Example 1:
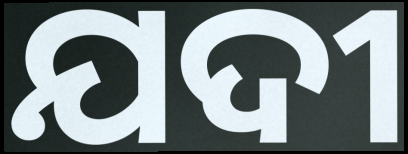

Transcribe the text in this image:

ଯଦୀ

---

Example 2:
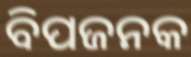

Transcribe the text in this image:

ବିପଜନକ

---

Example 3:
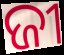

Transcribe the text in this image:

ଜୀ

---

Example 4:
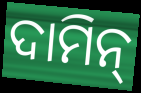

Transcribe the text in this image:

ଦାମିନ୍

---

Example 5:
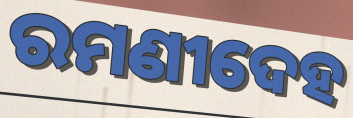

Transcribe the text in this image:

ରମଣୀଦେହ